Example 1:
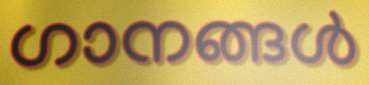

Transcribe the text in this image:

ഗാനങ്ങൾ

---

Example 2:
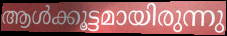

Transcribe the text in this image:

ആൾക്കൂട്ടമായിരുന്നു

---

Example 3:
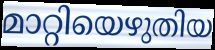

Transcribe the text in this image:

മാറ്റിയെഴുതിയ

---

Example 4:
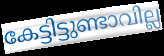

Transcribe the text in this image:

കേട്ടിട്ടുണ്ടാവില്ല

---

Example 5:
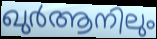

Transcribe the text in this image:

ഖുർആനിലും